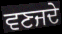
ਵਣਜਦੇ